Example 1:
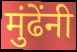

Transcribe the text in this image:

मुंढेंनी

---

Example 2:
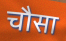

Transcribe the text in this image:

चौसा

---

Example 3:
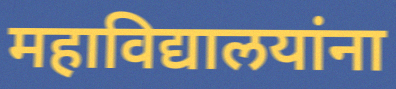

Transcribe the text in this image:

महाविद्यालयांना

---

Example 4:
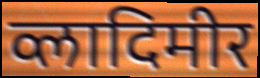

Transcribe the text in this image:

व्लादिमीर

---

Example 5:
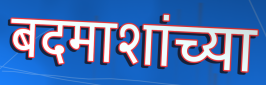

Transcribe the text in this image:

बदमाशांच्या